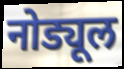
नोड्यूल